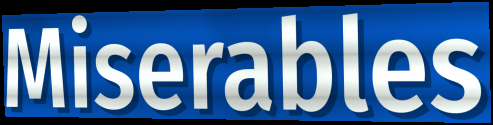
Miserables